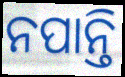
ନପାନ୍ତି